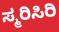
ಸ್ಮರಿಸಿರಿ